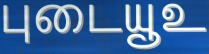
புடையூஉ